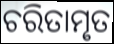
ଚରିତାମୃତ